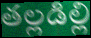
తల్లడిల్లి